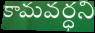
కామవర్ధని